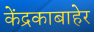
केंद्रकाबाहेर